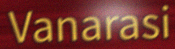
Vanarasi